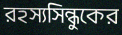
রহস্যসিন্ধুকের